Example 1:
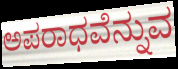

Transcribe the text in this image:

ಅಪರಾಧವೆನ್ನುವ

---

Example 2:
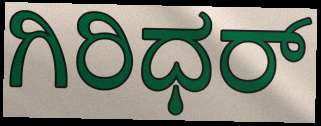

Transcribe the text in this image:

ಗಿರಿಧರ್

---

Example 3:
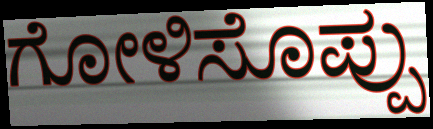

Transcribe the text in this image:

ಗೋಳಿಸೊಪ್ಪು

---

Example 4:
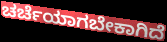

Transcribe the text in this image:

ಚರ್ಚೆಯಾಗಬೇಕಾಗಿದೆ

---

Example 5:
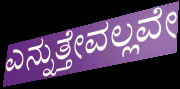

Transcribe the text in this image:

ಎನ್ನುತ್ತೇವಲ್ಲವೇ